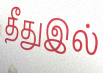
தீதுஇல்